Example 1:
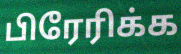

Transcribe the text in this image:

பிரேரிக்க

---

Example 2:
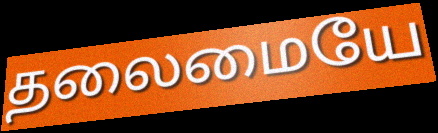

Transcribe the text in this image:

தலைமையே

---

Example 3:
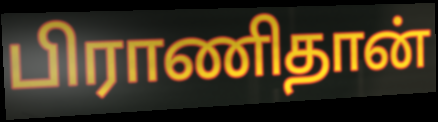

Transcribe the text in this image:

பிராணிதான்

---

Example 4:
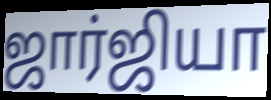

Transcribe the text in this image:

ஜார்ஜியா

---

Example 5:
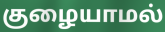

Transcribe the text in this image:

குழையாமல்